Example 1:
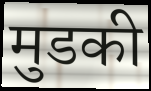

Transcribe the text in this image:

मुडकी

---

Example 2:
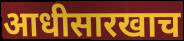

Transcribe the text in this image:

आधीसारखाच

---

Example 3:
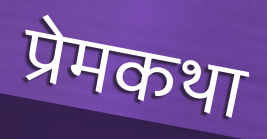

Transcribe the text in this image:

प्रेमकथा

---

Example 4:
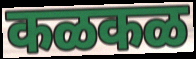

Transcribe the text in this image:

कळकळ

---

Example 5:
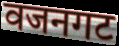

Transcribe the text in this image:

वजनगट